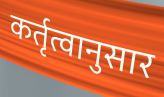
कर्तृत्वानुसार